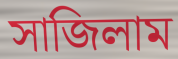
সাজিলাম